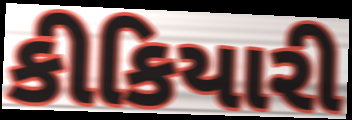
કીકિયારી